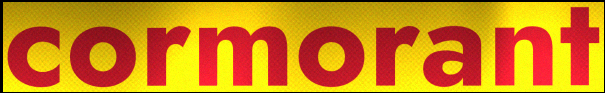
cormorant